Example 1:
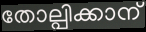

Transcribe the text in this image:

തോല്പിക്കാന്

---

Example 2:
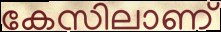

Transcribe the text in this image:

കേസിലാണ്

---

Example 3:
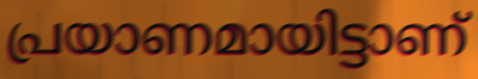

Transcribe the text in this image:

പ്രയാണമായിട്ടാണ്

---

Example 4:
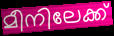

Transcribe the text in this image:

മീനിലേക്ക്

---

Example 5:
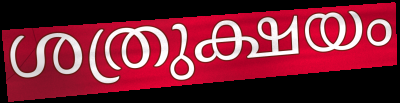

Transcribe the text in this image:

ശത്രുക്ഷയം